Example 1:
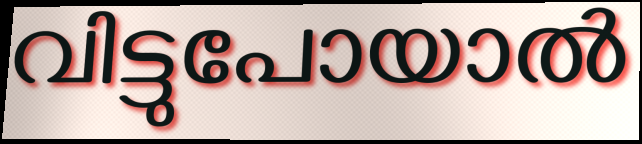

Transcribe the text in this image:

വിട്ടുപോയാൽ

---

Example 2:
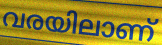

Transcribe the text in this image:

വരയിലാണ്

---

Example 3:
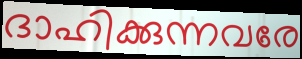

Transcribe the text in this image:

ദാഹിക്കുന്നവരേ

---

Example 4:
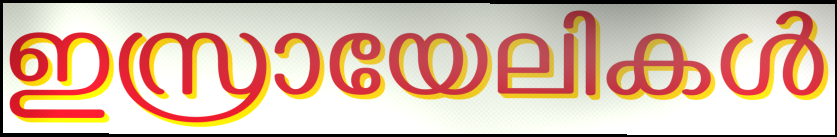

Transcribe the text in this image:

ഇസ്രായേലികൾ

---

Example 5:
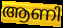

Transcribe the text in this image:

ആണി